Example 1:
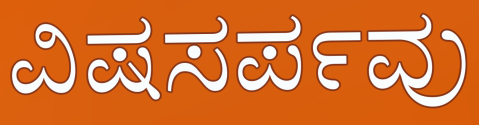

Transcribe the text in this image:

ವಿಷಸರ್ಪವು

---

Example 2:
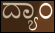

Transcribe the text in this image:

ದ್ಯಾಂ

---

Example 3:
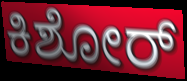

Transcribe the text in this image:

ಕಿಶೋರ್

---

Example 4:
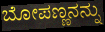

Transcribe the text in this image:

ಬೋಪಣ್ಣನನ್ನು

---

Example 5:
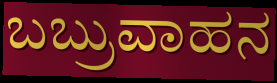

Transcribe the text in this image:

ಬಬ್ರುವಾಹನ